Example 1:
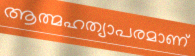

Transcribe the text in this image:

ആത്മഹത്യാപരമാണ്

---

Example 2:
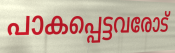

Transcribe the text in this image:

പാകപ്പെട്ടവരോട്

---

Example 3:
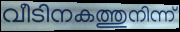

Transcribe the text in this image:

വീടിനകത്തുനിന്ന്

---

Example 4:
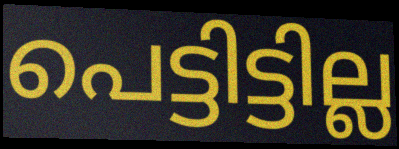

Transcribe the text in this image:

പെട്ടിട്ടില്ല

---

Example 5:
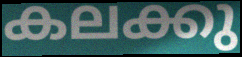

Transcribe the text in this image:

കലക്കു